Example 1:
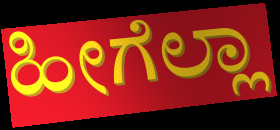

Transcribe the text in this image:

ಹೀಗೆಲ್ಲಾ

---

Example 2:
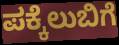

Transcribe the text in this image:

ಪಕ್ಕೆಲುಬಿಗೆ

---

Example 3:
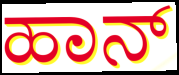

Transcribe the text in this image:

ಹಾನ್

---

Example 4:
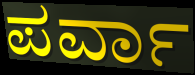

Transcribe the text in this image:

ಪರ್ವಾ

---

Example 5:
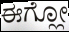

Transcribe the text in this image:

ಈಗ್ಲೋ